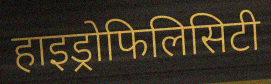
हाइड्रोफिलिसिटी